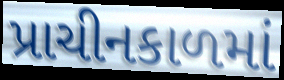
પ્રાચીનકાળમાં